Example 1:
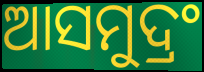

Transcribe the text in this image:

ଆସମୁଦ୍ରଂ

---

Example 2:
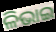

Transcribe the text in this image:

ଳିଭାଇ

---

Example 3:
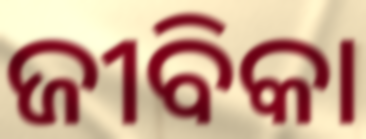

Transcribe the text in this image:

ଜୀବିକା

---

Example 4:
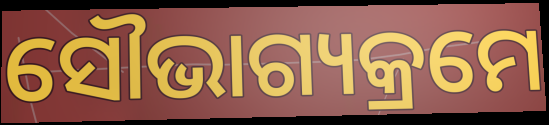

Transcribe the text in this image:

ସୌଭାଗ୍ୟକ୍ରମେ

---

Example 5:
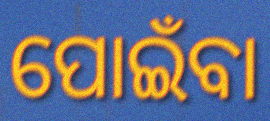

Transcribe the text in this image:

ପୋଇଁବା